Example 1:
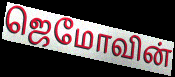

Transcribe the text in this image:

ஜெமோவின்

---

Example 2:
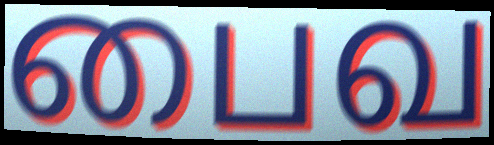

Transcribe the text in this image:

பைவ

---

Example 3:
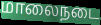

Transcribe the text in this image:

மாலைநடை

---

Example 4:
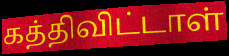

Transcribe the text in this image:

கத்திவிட்டாள்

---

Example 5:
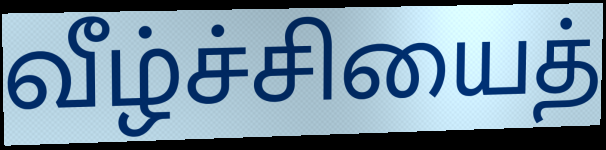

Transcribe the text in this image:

வீழ்ச்சியைத்